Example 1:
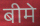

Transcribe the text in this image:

बीमे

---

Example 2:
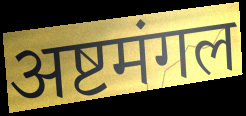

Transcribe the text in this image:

अष्टमंगल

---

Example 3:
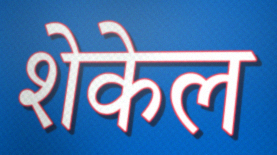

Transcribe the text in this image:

शेकेल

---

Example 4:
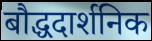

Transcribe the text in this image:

बौद्धदार्शनिक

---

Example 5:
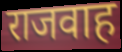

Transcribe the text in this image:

राजवाह